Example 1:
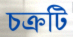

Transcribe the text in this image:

চক্রটি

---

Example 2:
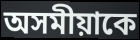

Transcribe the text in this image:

অসমীয়াকে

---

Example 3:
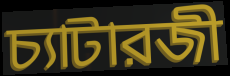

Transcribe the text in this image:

চ্যাটারজী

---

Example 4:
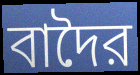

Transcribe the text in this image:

বাদৈর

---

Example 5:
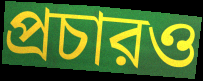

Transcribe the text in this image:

প্রচারও